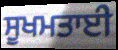
ਸੂਖਮਤਾਈ